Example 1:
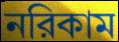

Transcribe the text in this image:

নরিকাম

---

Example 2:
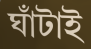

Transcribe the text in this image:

ঘাঁটাই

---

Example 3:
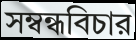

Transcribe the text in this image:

সম্বন্ধবিচার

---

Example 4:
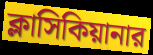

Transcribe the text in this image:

ক্লাসিকিয়ানার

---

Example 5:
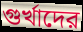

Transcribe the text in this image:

গুর্খাদের